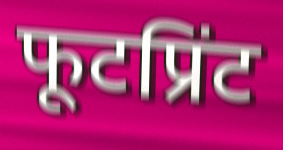
फूटप्रिंट